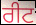
ਰੀਟ